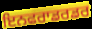
ਇਨਫਰਾਡਰਡਰ